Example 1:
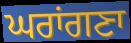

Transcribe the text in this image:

ਘਰਾਂਗਣਾ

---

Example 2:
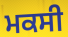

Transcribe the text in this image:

ਮਕਸੀ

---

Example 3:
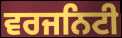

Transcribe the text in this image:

ਵਰਜਨਿਟੀ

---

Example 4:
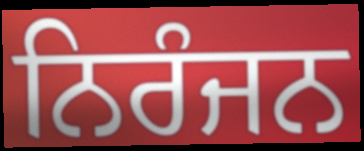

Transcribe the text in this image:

ਨਿਰੰਜਨ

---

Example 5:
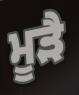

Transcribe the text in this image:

ਮੂੜੈ